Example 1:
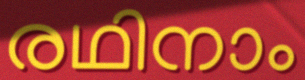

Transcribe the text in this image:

രഥിനാം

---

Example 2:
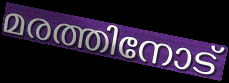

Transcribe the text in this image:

മരത്തിനോട്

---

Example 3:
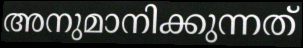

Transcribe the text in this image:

അനുമാനിക്കുന്നത്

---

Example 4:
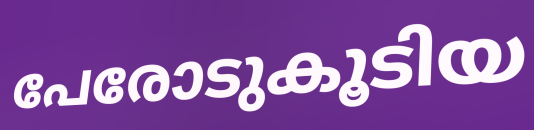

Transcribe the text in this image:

പേരോടുകൂടിയ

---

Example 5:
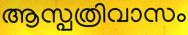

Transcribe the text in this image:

ആസ്പത്രിവാസം